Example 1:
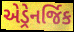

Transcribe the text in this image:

એડ્રેનર્જિક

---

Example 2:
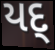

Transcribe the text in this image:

યદ્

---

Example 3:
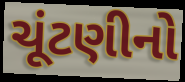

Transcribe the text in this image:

ચૂંટણીનો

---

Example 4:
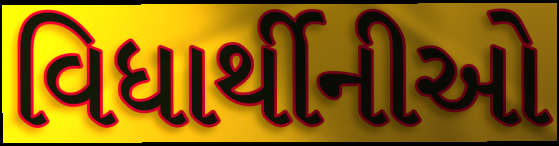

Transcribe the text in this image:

વિધાર્થીનીઓ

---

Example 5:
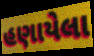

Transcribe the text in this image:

હણાયેલા